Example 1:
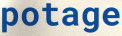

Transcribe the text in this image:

potage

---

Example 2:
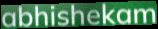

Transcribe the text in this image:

abhishekam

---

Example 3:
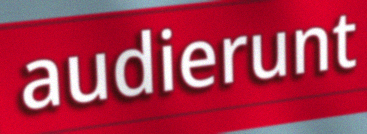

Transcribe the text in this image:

audierunt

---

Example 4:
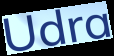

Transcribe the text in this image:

Udra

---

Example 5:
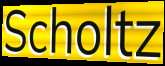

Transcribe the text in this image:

Scholtz